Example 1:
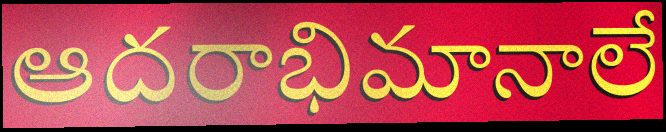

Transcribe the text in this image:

ఆదరాభిమానాలే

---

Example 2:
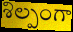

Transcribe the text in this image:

శిల్పంగా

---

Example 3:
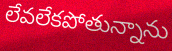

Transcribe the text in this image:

లేవలేకపోతున్నాను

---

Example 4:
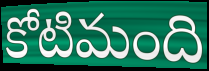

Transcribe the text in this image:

కోటిమంది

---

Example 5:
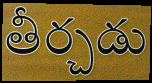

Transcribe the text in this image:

తీర్చడు